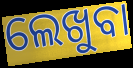
ଲେଖୁବା